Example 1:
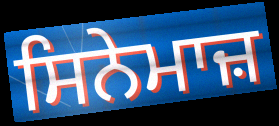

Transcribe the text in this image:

ਸਿਨੇਮਾਜ਼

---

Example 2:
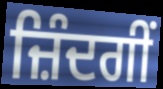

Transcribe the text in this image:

ਜ਼ਿੰਦਗੀਂ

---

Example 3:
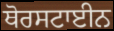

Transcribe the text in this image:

ਥੋਰਸਟਾਈਨ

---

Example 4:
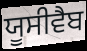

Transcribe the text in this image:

ਯੂਸੀਵੈਬ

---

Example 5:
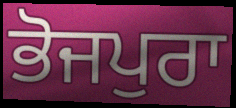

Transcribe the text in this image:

ਭੋਜਪੁਰਾ